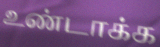
உண்டாக்க